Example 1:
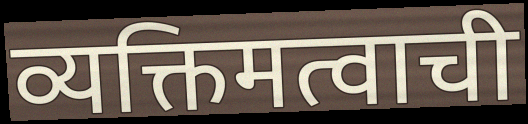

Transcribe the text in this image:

व्यक्तिमत्वाची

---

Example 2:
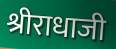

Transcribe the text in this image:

श्रीराधाजी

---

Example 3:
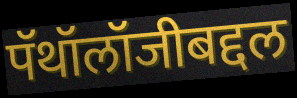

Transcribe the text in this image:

पॅथॉलॉजीबद्दल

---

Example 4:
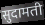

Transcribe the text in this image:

सुदामती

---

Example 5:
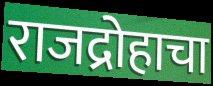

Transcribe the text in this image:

राजद्रोहाचा